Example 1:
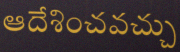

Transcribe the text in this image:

ఆదేశించవచ్చు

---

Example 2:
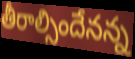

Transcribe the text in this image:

తీరాల్సిందేనన్న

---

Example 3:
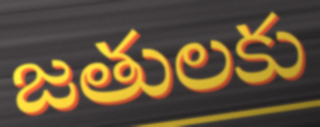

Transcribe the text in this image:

జతులకు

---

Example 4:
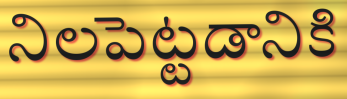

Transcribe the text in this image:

నిలపెట్టడానికి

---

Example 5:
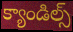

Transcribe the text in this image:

క్యాండిల్స్